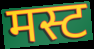
मस्‍ट